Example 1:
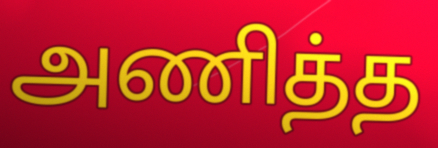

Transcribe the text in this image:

அணித்த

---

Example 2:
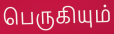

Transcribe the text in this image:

பெருகியும்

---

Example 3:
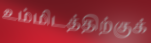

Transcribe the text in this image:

உம்மிடத்திற்குக்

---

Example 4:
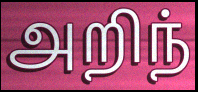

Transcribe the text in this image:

அறிந்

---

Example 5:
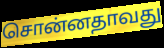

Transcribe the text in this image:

சொன்னதாவது